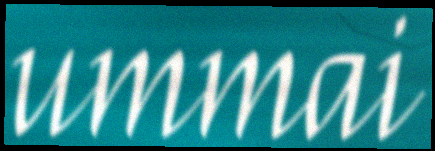
ummai